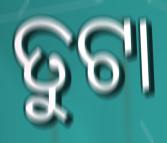
ତୁଟା